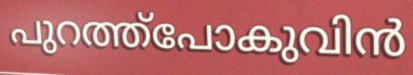
പുറത്ത്പോകുവിൻ